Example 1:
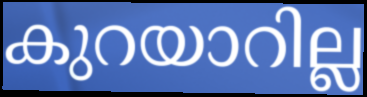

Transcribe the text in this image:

കുറയാറില്ല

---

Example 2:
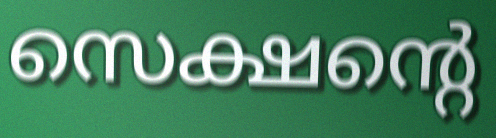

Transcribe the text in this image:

സെക്ഷന്റെ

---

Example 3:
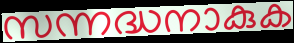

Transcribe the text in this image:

സന്നദ്ധനാകുക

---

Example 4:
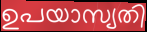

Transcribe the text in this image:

ഉപയാസ്യതി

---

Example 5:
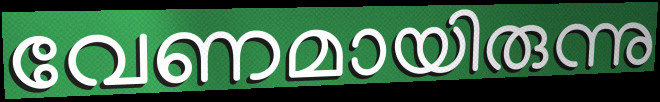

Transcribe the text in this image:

വേണമായിരുന്നു